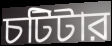
চটিটার